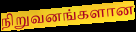
நிறுவனங்களான